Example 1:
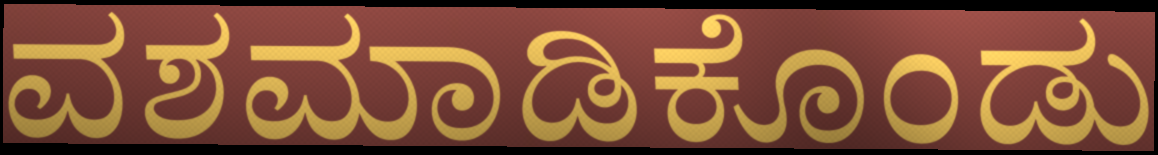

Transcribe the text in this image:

ವಶಮಾಡಿಕೊಂಡು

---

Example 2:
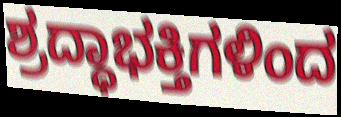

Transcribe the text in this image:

ಶ್ರದ್ಧಾಭಕ್ತಿಗಳಿಂದ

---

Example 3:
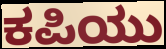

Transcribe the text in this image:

ಕಪಿಯು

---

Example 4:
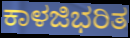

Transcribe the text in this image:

ಕಾಳಜಿಭರಿತ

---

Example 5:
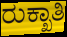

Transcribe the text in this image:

ರುಕ್ಖಾತಿ